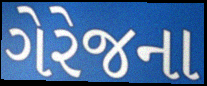
ગેરેજના